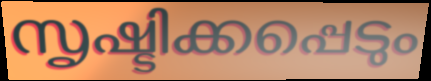
സൃഷ്ടിക്കപ്പെടും